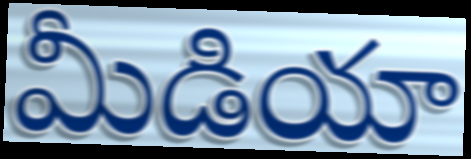
మీడియా